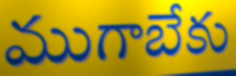
ముగాబేకు